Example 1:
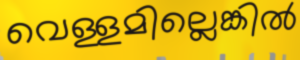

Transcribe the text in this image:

വെള്ളമില്ലെങ്കിൽ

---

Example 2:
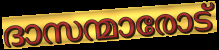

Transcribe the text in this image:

ദാസന്മാരോട്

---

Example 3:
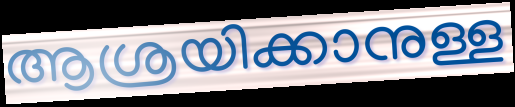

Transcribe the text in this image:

ആശ്രയിക്കാനുള്ള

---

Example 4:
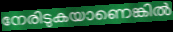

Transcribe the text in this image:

നേരിടുകയാണെങ്കിൽ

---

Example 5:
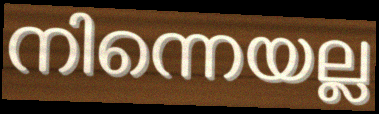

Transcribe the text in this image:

നിന്നെയല്ല